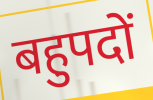
बहुपदों